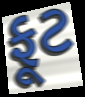
ફૂટ